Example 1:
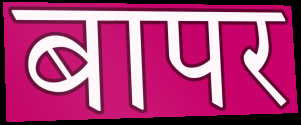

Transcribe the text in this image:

बापर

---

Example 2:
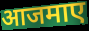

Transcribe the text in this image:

आजमाए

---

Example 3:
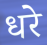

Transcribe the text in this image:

धरे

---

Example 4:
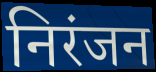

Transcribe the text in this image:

निरंजन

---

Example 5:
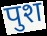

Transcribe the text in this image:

पुश